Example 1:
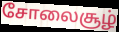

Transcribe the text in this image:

சோலைசூழ்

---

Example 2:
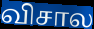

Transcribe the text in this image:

விசால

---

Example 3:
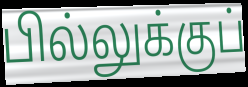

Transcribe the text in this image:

பில்லுக்குப்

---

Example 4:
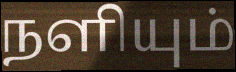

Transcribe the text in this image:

நளியும்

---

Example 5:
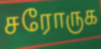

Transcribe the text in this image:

சரோருக